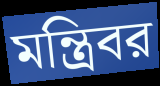
মন্ত্রিবর